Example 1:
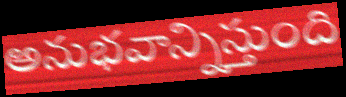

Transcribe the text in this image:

అనుభవాన్నిస్తుంది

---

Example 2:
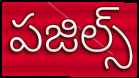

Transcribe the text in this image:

పజిల్స్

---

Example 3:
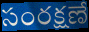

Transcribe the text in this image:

సంరక్షణే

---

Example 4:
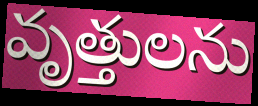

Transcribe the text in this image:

వృత్తులను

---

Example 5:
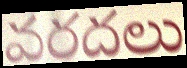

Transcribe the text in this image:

వరదలు